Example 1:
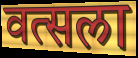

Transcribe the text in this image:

वत्सला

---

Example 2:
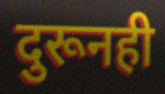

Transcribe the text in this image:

दुरूनही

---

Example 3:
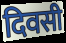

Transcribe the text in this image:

दिवसी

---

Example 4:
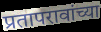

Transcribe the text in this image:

प्रतापरावांच्या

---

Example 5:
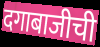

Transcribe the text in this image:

दगाबाजीची